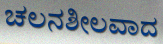
ಚಲನಶೀಲವಾದ